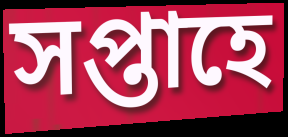
সপ্তাহে